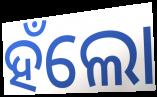
ହଁଲୋ